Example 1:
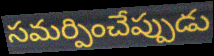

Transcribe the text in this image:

సమర్పించేప్పుడు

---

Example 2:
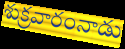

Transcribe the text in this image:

శుక్రవారంనాడు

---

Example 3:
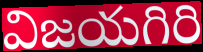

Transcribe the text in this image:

విజయగిరి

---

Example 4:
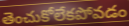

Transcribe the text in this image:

తెంచుకోలేకపోవడం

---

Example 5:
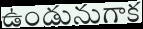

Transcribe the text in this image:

ఉండునుగాక